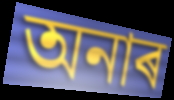
অনাৰ